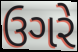
ઉગરે